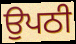
ਉਪਠੀ